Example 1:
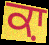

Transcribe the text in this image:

ਕ਼ਾ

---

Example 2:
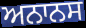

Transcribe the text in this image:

ਅਨਾਨਸ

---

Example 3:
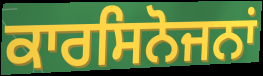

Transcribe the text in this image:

ਕਾਰਸਿਨੋਜਨਾਂ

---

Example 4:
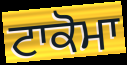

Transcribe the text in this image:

ਟਾਕੋਮਾ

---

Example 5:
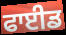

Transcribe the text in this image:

ਫਾਈਡ